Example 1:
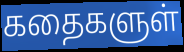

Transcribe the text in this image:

கதைகளுள்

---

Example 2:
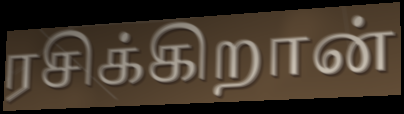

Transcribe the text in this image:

ரசிக்கிறான்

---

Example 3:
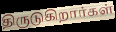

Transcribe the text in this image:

திருடுகிறார்கள்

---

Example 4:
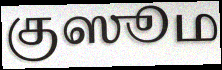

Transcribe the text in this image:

குஸூம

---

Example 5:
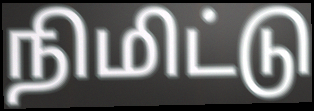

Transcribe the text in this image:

நிமிட்டு